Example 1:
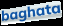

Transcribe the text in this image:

baghata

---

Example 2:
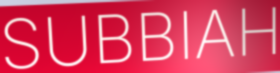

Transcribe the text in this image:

SUBBIAH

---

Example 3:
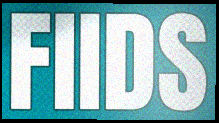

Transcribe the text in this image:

FIIDS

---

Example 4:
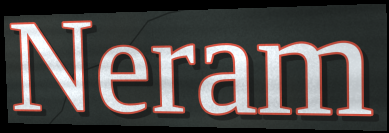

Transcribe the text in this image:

Neram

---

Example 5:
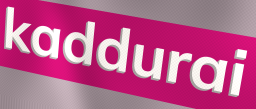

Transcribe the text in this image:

kaddurai